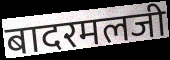
बादरमलजी